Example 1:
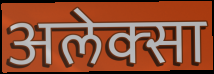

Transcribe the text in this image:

अलेक्‍सा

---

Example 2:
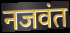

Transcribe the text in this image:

नजवंत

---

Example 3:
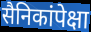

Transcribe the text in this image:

सैनिकांपेक्षा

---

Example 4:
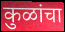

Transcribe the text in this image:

कुळांचा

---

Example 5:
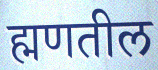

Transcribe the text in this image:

ह्मणतील